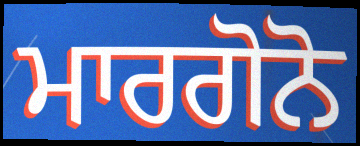
ਮਾਰਗੋਨੋ